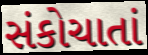
સંકોચાતાં